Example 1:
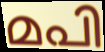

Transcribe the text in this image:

മപി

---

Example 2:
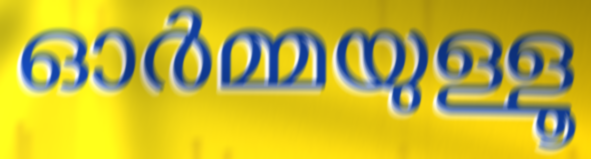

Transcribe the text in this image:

ഓർമ്മയുള്ളൂ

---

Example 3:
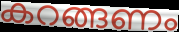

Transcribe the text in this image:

കറങ്ങണം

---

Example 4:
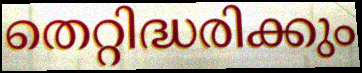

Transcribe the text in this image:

തെറ്റിദ്ധരിക്കും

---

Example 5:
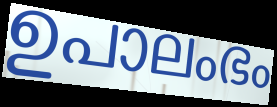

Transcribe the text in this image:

ഉപാലംഭം